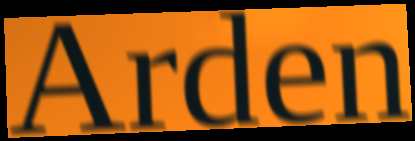
Arden